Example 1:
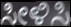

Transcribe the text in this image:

ಸೀಳಿಸಿ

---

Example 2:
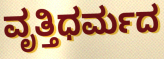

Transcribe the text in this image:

ವೃತ್ತಿಧರ್ಮದ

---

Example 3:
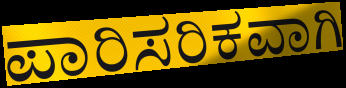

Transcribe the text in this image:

ಪಾರಿಸರಿಕವಾಗಿ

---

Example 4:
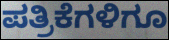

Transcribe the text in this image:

ಪತ್ರಿಕೆಗಳಿಗೂ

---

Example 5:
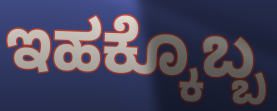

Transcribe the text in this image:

ಇಹಕ್ಕೊಬ್ಬ